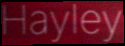
Hayley